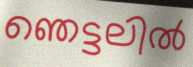
ഞെട്ടലിൽ